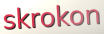
skrokon